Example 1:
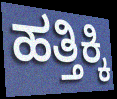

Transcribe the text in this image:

ಹತ್ತಿಕ್ಕಿ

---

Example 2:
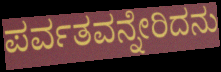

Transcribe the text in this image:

ಪರ್ವತವನ್ನೇರಿದನು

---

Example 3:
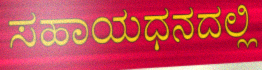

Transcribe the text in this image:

ಸಹಾಯಧನದಲ್ಲಿ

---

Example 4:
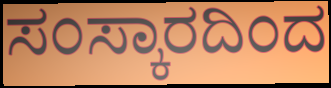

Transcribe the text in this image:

ಸಂಸ್ಕಾರದಿಂದ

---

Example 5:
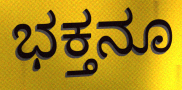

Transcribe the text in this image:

ಭಕ್ತನೂ